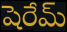
షెరేమ్